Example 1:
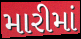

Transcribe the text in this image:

મારીમાં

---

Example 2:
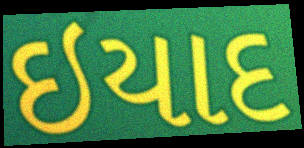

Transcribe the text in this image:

ઇયાદ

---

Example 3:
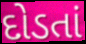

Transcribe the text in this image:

દોડતાં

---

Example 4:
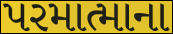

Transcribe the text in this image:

પરમાત્માના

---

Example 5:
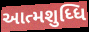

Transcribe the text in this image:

આત્મશુધ્ધિ